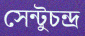
সেন্টুচন্দ্র